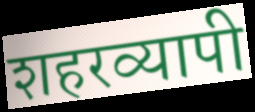
शहरव्यापी